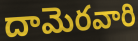
దామెరవారి